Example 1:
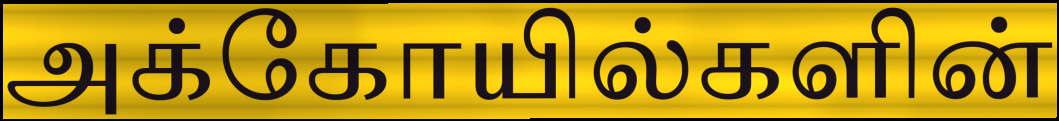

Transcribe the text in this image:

அக்கோயில்களின்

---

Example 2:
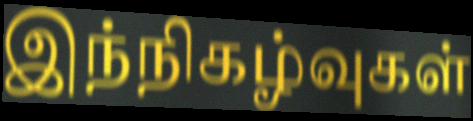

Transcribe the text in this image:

இந்நிகழ்வுகள்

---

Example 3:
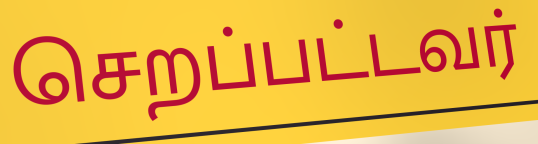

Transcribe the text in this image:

செறப்பட்டவர்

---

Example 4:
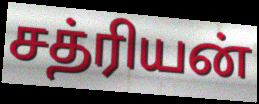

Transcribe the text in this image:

சத்ரியன்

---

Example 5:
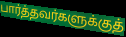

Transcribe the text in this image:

பார்த்தவர்களுக்குத்